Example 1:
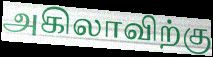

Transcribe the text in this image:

அகிலாவிற்கு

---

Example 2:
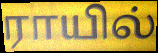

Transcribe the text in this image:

ராயில்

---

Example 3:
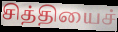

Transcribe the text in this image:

சித்தியைச்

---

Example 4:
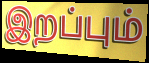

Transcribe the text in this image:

இறப்பும்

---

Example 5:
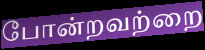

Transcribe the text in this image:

போன்றவற்றை